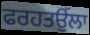
ਫਰਹਤਉੱਲਾ